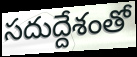
సదుద్దేశంతో